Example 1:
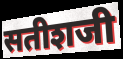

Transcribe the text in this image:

सतीशजी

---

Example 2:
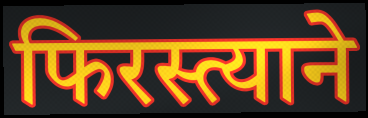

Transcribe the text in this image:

फिरस्त्याने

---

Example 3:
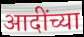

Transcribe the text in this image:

आदींच्या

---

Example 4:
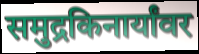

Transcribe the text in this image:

समुद्रकिनार्यांवर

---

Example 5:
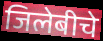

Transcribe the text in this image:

जिलेबीचे